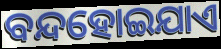
ବନ୍ଦହୋଇଯାଏ